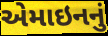
એમાઇનનું